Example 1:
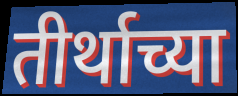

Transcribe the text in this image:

तीर्थाच्या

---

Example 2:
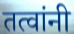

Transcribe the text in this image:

तत्वांनी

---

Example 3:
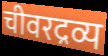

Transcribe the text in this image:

चीवरद्रव्य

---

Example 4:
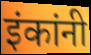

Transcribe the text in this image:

इंकांनी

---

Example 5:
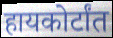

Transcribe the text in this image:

हायकोर्टांत